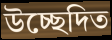
উচ্ছেদিত